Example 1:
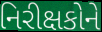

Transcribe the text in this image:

નિરીક્ષકોને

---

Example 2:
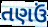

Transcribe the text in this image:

તણઉં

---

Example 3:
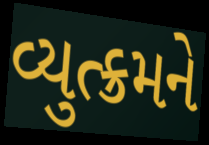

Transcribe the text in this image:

વ્યુત્ક્રમને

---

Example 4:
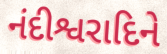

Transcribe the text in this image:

નંદીશ્વરાદિને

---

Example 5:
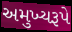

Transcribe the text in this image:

અમુખ્યરૂપે